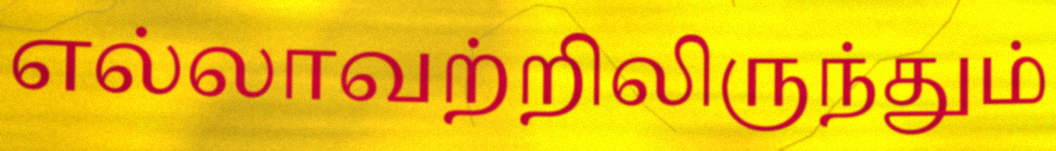
எல்லாவற்றிலிருந்தும்